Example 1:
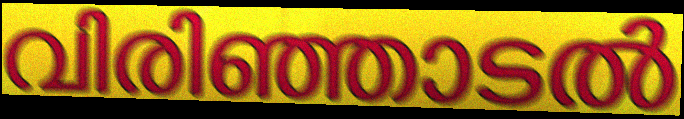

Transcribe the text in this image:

വിരിഞ്ഞാടൽ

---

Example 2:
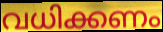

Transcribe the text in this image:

വധിക്കണം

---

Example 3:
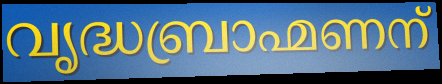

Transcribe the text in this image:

വൃദ്ധബ്രാഹ്മണന്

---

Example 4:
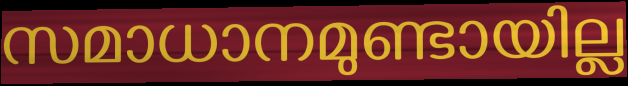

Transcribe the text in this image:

സമാധാനമുണ്ടായില്ല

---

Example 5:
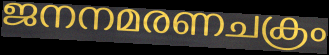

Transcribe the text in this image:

ജനനമരണചക്രം